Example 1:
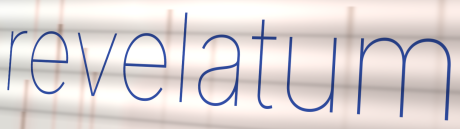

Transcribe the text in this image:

revelatum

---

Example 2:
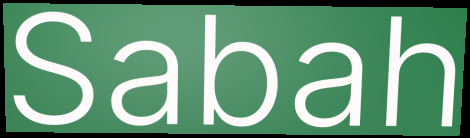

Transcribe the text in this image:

Sabah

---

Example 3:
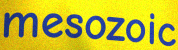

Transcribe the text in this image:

mesozoic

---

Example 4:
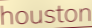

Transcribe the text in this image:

houston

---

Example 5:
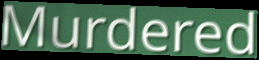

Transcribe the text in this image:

Murdered